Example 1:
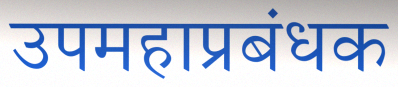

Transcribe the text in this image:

उपमहाप्रबंधक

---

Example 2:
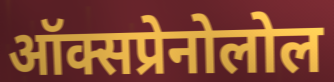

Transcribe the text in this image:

ऑक्सप्रेनोलोल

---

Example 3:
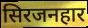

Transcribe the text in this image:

सिरजनहार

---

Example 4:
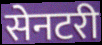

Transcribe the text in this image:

सेनटरी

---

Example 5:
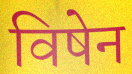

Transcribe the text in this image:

विषेन